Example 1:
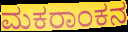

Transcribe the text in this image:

ಮಕರಾಂಕನ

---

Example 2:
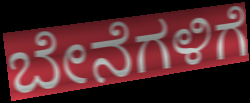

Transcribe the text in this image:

ಬೇನೆಗಳಿಗೆ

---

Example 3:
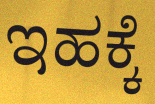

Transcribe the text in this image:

ಇಹಕ್ಕೆ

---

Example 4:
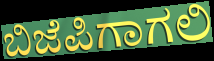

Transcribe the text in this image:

ಬಿಜೆಪಿಗಾಗಲಿ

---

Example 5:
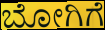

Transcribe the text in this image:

ಬೋಗಿಗೆ